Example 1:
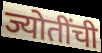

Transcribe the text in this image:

ज्योतींची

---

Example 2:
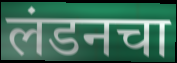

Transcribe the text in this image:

लंडनचा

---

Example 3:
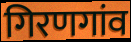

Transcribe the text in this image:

गिरणगांव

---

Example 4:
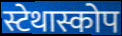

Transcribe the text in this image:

स्टेथास्कोप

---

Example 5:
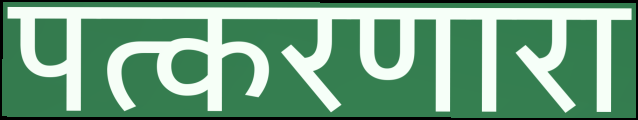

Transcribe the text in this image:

पत्करणारा